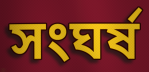
সংঘৰ্ষ